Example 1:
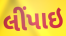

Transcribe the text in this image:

લીંપાઇ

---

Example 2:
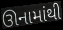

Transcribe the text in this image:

ઊનામાંથી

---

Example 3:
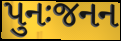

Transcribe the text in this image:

પુનઃજનન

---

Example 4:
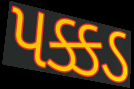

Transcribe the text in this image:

પક્કડ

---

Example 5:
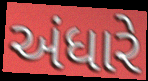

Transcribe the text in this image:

અંધારે